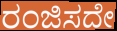
ರಂಜಿಸದೇ